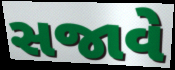
સજાવે